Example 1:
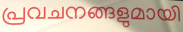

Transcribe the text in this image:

പ്രവചനങ്ങളുമായി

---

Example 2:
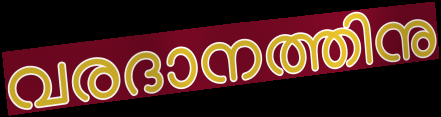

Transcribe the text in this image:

വരദാനത്തിനു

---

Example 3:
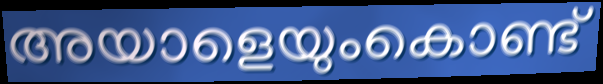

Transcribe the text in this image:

അയാളെയുംകൊണ്ട്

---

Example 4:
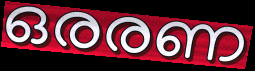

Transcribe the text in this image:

ഒരരണ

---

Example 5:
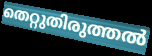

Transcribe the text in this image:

തെറ്റുതിരുത്തൽ